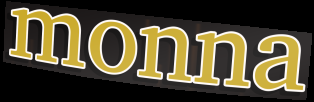
monna